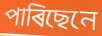
পাৰিছেনে